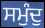
ਸਮੁੰਦੁ